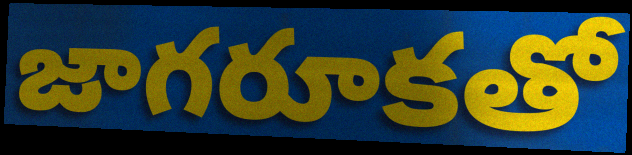
జాగరూకతో